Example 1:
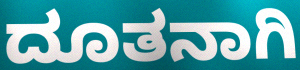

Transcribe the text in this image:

ದೂತನಾಗಿ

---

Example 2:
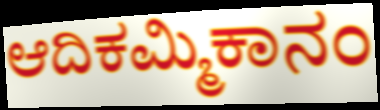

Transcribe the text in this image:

ಆದಿಕಮ್ಮಿಕಾನಂ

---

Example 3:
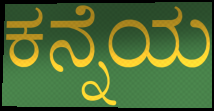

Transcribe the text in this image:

ಕನ್ನೆಯ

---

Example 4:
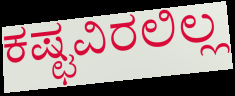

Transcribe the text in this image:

ಕಷ್ಟವಿರಲಿಲ್ಲ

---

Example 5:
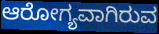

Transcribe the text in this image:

ಆರೋಗ್ಯವಾಗಿರುವ